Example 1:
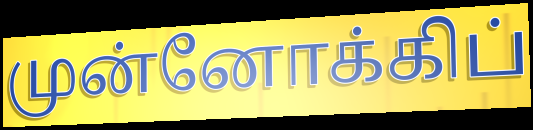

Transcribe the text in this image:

முன்னோக்கிப்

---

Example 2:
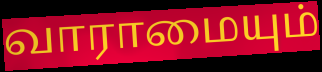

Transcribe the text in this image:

வாராமையும்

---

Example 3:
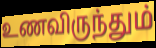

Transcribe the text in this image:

உணவிருந்தும்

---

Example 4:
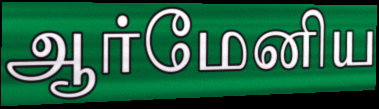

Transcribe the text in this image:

ஆர்மேனிய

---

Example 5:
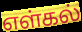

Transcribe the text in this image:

எள்கல்